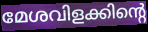
മേശവിളക്കിന്റെ